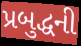
પ્રબુદ્ધની